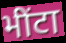
भींटा